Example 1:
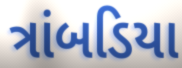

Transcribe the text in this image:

ત્રાંબડિયા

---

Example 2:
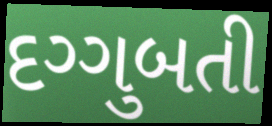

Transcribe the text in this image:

દગ્ગુબતી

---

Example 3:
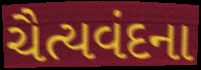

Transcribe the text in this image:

ચૈત્યવંદના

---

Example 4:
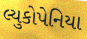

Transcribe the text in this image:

લ્યુકોપેનિયા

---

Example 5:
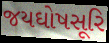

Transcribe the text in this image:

જયઘોષસૂરિ